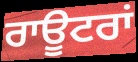
ਰਾਊਟਰਾਂ